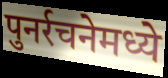
पुनर्रचनेमध्ये